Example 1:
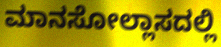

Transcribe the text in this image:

ಮಾನಸೋಲ್ಲಾಸದಲ್ಲಿ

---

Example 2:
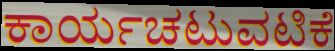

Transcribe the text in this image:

ಕಾರ್ಯಚಟುವಟಿಕೆ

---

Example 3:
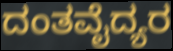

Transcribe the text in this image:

ದಂತವೈದ್ಯರ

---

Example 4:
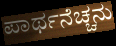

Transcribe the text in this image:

ಪಾರ್ಥನೆಚ್ಚನು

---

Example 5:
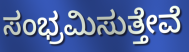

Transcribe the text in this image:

ಸಂಭ್ರಮಿಸುತ್ತೇವೆ